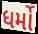
ધર્મો